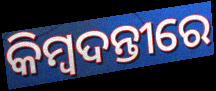
କିମ୍ବଦନ୍ତୀରେ